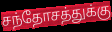
சந்தோசத்துக்கு